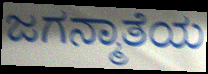
ಜಗನ್ಮಾತೆಯ